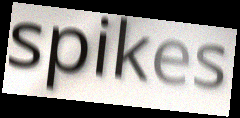
spikes